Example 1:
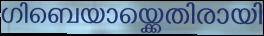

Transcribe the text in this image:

ഗിബെയായ്ക്കെതിരായി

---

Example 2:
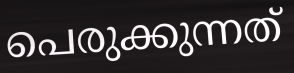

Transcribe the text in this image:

പെരുക്കുന്നത്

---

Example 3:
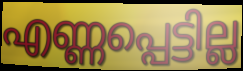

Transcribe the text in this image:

എണ്ണപ്പെട്ടില്ല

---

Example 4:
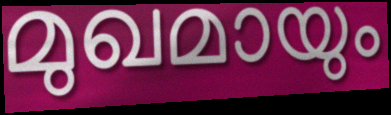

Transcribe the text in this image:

മുഖമായും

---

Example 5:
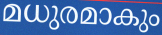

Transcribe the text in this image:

മധുരമാകും